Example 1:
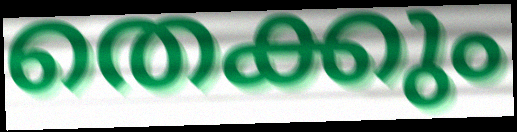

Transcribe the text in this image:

തെക്കും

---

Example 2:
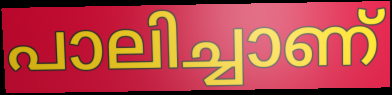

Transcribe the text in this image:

പാലിച്ചാണ്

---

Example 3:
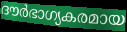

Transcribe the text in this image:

ദൗർഭാഗ്യകരമായ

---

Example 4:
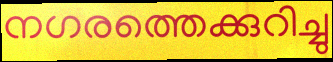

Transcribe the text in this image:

നഗരത്തെക്കുറിച്ചു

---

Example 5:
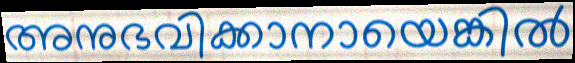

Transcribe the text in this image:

അനുഭവിക്കാനായെങ്കിൽ